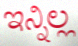
ಇನ್ನಿಲ್ಲ